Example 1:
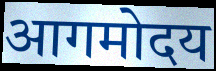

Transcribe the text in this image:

आगमोदय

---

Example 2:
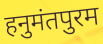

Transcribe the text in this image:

हनुमंतपुरम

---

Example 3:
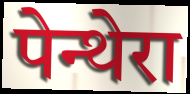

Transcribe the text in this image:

पेन्थेरा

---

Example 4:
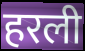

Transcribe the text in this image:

हरली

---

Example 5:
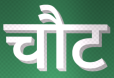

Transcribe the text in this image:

चौट